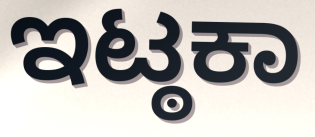
ಇಟ್ಠಕಾ